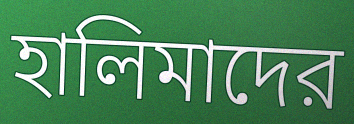
হালিমাদের